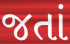
જતાં